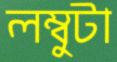
লম্বুটা